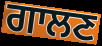
ਗਾਲਣ